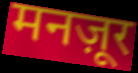
मनज़ूर